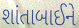
શાંતાબાઈને